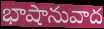
భాషానువాద